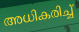
അധികരിച്ച്